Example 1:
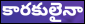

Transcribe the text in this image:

కారకులైనా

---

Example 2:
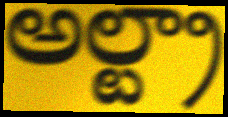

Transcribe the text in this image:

అల్ట్రా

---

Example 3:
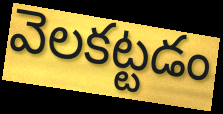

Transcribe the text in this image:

వెలకట్టడం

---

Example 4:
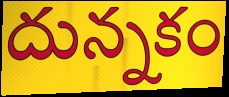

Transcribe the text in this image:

దున్నకం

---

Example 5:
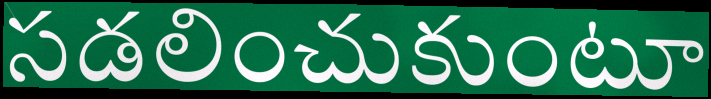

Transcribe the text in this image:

సడలించుకుంటూ